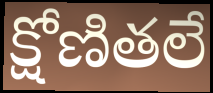
క్షోణితలే